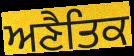
ਅਣੈਤਿਕ